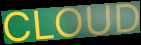
CLOUD